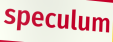
speculum